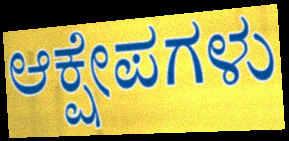
ಆಕ್ಷೇಪಗಳು